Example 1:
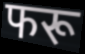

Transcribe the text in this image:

फरू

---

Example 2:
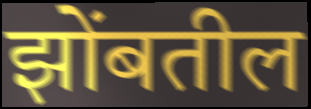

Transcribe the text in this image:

झोंबतील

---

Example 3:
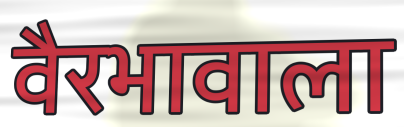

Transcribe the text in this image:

वैरभावाला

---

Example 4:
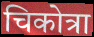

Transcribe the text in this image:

चिकोत्रा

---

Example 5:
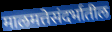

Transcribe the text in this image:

मालमत्तेसंदर्भातील